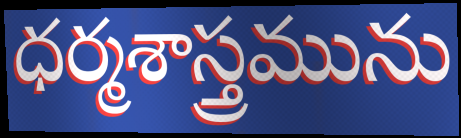
ధర్మశాస్త్రమును